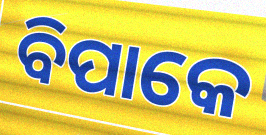
ବିପାକେ